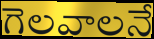
గెలవాలనే